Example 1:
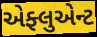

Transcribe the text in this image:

એફ્લુએન્ટ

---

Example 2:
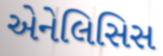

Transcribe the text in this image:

એનેલિસિસ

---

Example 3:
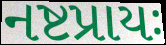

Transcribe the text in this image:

નષ્ટપ્રાયઃ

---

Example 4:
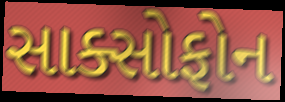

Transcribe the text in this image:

સાક્સોફોન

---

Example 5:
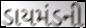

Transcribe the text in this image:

ડાયમંડની